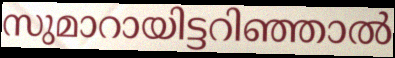
സുമാറായിട്ടറിഞ്ഞാൽ